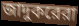
জাদুকরেরা